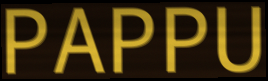
PAPPU